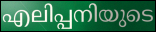
എലിപ്പനിയുടെ